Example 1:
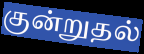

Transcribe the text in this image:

குன்றுதல்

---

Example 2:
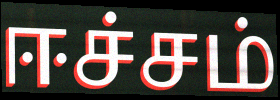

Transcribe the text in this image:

ஈச்சம்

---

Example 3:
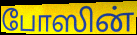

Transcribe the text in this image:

போஸின்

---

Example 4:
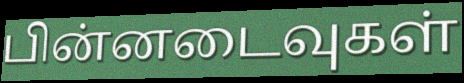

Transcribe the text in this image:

பின்னடைவுகள்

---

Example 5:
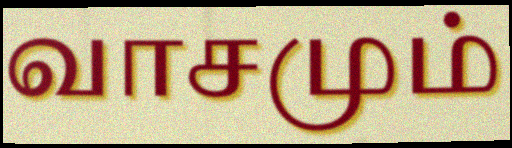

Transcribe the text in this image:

வாசமும்